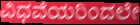
ವಿಧವೆಯರಿಂದಲೇ